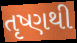
તૃષ્ણથી